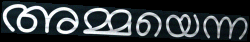
അമ്മയെന്ന